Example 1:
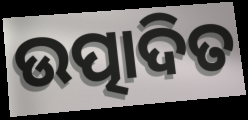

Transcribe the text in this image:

ଉତ୍ପାଦିତ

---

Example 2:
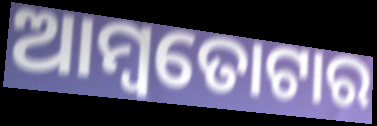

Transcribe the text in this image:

ଆମ୍ବତୋଟାର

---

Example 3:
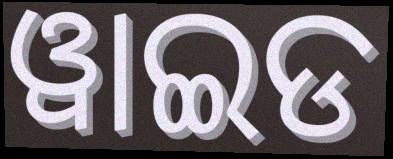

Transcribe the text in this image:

ୱାଇଡ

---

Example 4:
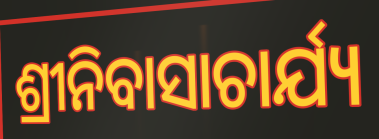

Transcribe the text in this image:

ଶ୍ରୀନିବାସାଚାର୍ଯ୍ୟ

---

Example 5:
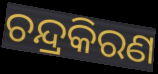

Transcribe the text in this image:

ଚନ୍ଦ୍ରକିରଣ